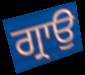
ਗ੍ਰਾਉ